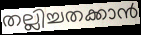
തല്ലിച്ചതക്കാൻ